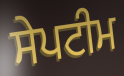
ਸੇਪਟੀਮ